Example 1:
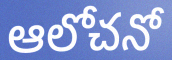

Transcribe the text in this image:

ఆలోచనో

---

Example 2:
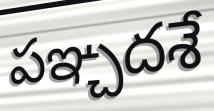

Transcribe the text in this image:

పఞ్చదశే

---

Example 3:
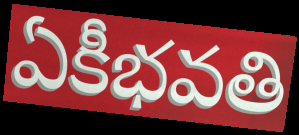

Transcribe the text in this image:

ఏకీభవతి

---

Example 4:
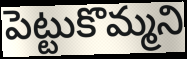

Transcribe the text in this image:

పెట్టుకొమ్మని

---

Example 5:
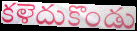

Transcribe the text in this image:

కళెదుకొండు